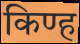
किण्ह